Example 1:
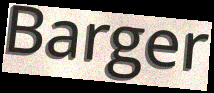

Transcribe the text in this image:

Barger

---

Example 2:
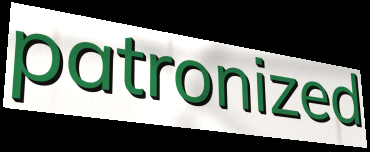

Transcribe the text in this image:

patronized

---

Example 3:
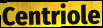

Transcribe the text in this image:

Centriole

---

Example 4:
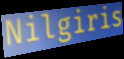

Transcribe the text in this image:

Nilgiris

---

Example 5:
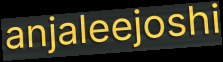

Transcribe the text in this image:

anjaleejoshi